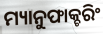
ମ୍ୟାନୁଫାକ୍ଚରିଂ